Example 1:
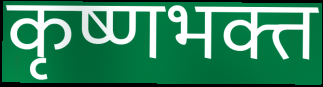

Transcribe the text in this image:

कृष्णभक्त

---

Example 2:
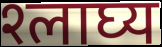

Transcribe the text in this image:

श्लाघ्य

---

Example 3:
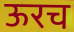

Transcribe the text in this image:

ऊरच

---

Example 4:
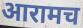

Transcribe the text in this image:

आरामच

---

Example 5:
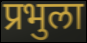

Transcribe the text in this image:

प्रभुला